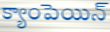
క్యాంపెయిన్